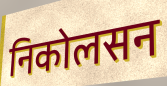
निकोलसन